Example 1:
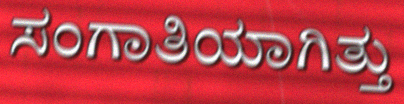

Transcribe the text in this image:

ಸಂಗಾತಿಯಾಗಿತ್ತು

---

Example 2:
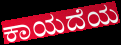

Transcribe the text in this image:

ಕಾಯದೆಯ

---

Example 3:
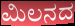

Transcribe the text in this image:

ಮಿಲನದ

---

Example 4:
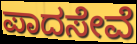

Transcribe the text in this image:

ಪಾದಸೇವೆ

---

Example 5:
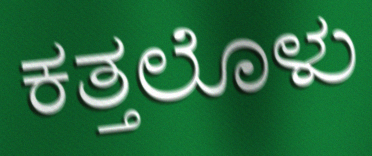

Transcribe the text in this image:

ಕತ್ತಲೊಳು